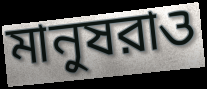
মানুষরাও